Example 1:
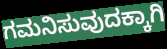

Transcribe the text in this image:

ಗಮನಿಸುವುದಕ್ಕಾಗಿ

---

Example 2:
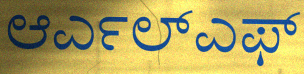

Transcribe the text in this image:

ಆರ್ಎಲ್ಎಫ್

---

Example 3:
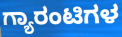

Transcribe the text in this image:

ಗ್ಯಾರಂಟಿಗಳ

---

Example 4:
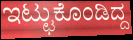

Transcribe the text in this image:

ಇಟ್ಟುಕೊಂಡಿದ್ದ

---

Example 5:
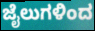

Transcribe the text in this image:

ಜೈಲುಗಳಿಂದ